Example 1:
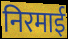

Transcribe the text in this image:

निरमाई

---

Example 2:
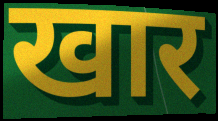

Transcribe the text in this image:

खार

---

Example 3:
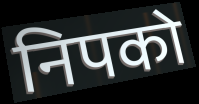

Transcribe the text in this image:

निपको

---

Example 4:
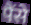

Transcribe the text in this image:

पैंसे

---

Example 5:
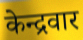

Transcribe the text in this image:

केन्द्रवार